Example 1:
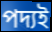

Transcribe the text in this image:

পদ্যই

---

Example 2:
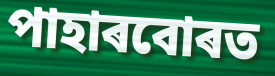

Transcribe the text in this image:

পাহাৰবোৰত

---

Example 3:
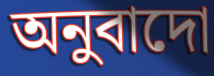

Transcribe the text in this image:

অনুবাদো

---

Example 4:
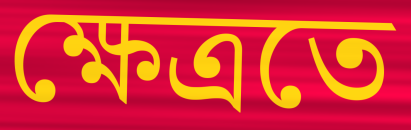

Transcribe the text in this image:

ক্ষেত্ৰতে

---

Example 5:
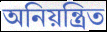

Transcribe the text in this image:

অনিয়ন্ত্ৰিত